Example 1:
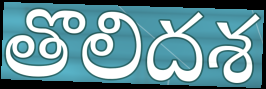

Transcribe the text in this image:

తొలిదశ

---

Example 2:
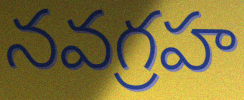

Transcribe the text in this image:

నవగ్రహ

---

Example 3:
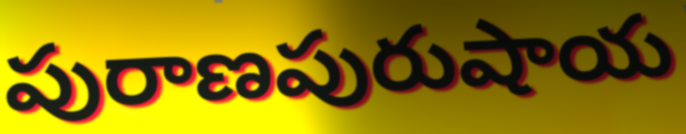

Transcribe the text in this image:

పురాణపురుషాయ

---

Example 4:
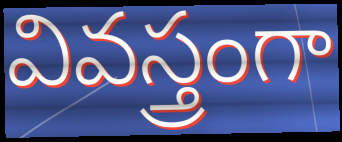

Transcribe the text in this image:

వివస్త్రంగా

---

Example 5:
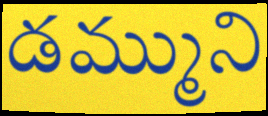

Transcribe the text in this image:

డమ్ముని